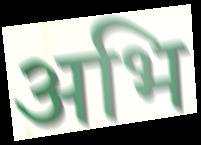
अभि